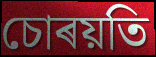
চোৰয়তি